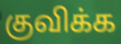
குவிக்க